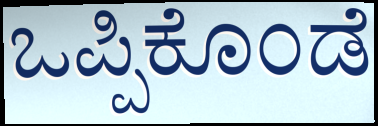
ಒಪ್ಪಿಕೊಂಡೆ